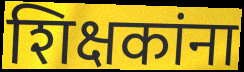
शिक्षकांना